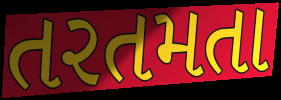
તરતમતા